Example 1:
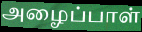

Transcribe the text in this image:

அழைப்பாள்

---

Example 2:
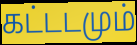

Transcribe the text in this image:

கட்டடமும்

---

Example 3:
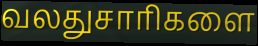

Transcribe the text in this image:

வலதுசாரிகளை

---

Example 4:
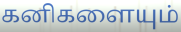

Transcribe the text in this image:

கனிகளையும்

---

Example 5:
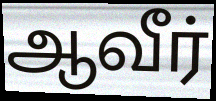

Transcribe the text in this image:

ஆவீர்